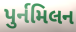
પુર્નમિલન